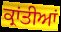
ਕ੍ਰਾਂਤੀਆਂ